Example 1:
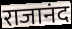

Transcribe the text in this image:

राजानंद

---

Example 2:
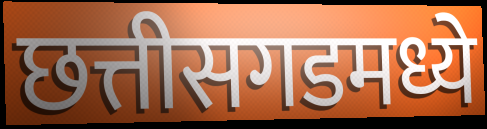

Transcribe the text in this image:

छत्तीसगडमध्ये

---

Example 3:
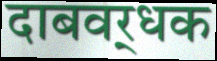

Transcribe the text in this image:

दाबवर्धक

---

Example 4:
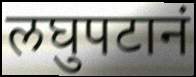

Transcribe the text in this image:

लघुपटानं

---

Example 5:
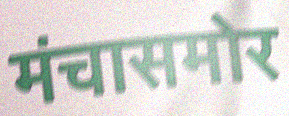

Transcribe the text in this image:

मंचासमोर